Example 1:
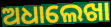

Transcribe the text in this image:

ଅଧାଲେଖା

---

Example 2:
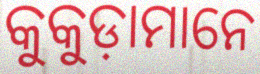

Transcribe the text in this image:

କୁକୁଡ଼ାମାନେ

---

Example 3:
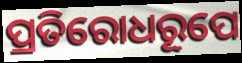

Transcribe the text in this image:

ପ୍ରତିରୋଧରୂପେ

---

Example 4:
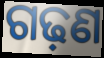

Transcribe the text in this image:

ଗଢ଼ଣ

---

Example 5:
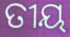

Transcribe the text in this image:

ତୀୟ